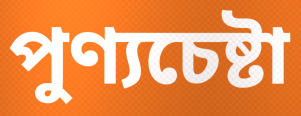
পুণ্যচেষ্টা